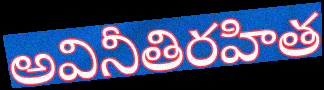
అవినీతిరహిత